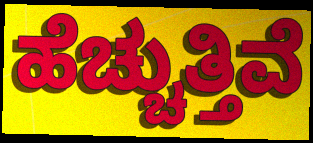
ಹೆಚ್ಚುತ್ತಿವೆ